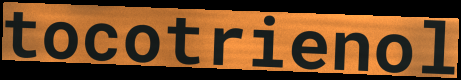
tocotrienol